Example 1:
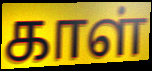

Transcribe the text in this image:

காள்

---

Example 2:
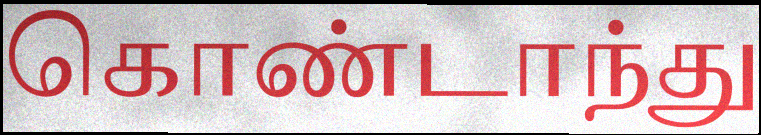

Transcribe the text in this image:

கொண்டாந்து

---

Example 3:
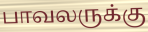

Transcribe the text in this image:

பாவலருக்கு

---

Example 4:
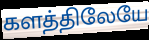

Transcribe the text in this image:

களத்திலேயே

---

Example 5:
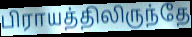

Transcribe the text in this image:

பிராயத்திலிருந்தே